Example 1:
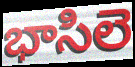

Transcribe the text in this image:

భాసిలె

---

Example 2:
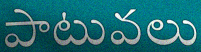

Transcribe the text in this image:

పాటువలు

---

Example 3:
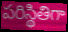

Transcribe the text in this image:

పరిస్థితిగా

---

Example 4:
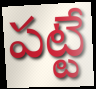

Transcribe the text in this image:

పట్టే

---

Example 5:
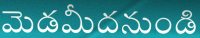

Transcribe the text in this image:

మెడమీదనుండి